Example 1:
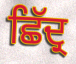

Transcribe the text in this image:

ਛਿੱਦ੍ਰ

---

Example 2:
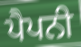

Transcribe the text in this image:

ਪੈਪਨੀ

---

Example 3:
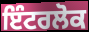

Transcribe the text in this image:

ਇੰਟਰਲੋਕ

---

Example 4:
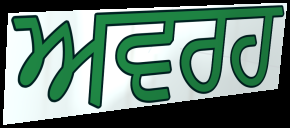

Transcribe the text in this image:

ਅਵਰਹ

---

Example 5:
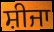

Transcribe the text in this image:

ਸ਼ੀਜਾ